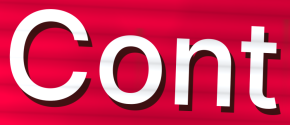
Cont